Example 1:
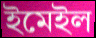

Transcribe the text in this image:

ইমেইল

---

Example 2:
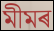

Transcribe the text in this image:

মীমৰ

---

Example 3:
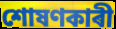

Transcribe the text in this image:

শোষণকাৰী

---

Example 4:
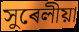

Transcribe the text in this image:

সুৰেলীয়া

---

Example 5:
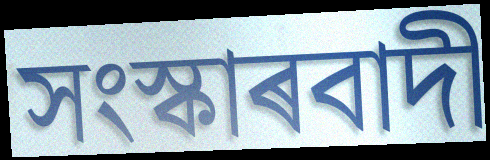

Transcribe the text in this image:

সংস্কাৰবাদী